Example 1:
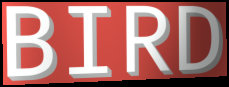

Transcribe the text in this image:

BIRD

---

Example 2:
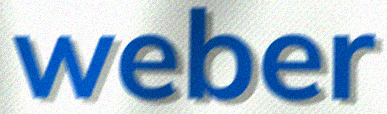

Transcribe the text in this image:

weber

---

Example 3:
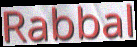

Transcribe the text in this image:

Rabbal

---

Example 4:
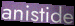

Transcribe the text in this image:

anistide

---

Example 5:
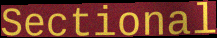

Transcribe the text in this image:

Sectional